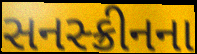
સનસ્ક્રીનના